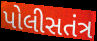
પોલીસતંત્ર